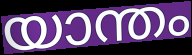
യാന്തം